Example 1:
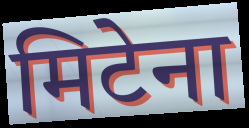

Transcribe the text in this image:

मिटेना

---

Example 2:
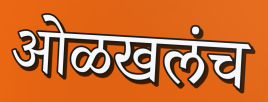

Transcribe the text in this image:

ओळखलंच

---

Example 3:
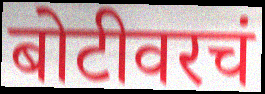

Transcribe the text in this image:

बोटीवरचं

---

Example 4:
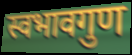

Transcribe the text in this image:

स्वभावगुण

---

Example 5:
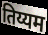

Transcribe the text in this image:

तिय्यम